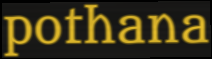
pothana